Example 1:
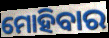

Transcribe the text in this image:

ମୋହିବାର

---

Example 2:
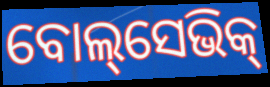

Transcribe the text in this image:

ବୋଲ୍‌ସେଭିକ୍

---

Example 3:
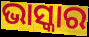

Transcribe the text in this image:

ଭାସ୍କାର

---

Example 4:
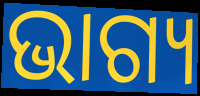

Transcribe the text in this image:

ଭାଗ୍ୟ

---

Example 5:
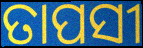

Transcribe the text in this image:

ତାପସୀ